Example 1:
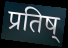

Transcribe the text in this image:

प्रतिष्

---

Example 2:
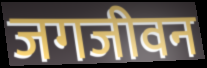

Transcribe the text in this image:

जगजीवन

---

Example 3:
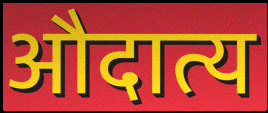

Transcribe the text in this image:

औदात्य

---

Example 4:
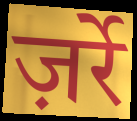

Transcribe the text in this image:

ज़र्रे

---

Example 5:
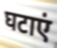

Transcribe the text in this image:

घटाएं